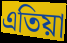
এতিয়া